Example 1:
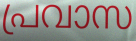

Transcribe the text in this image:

പ്രവാസ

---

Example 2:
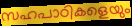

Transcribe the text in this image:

സഹപാഠികളെയും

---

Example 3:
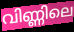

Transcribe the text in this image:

വിണ്ണിലെ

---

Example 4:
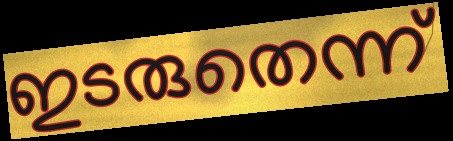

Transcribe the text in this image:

ഇടരുതെന്ന്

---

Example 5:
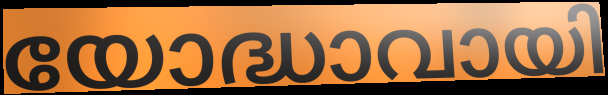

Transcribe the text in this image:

യോദ്ധാവായി